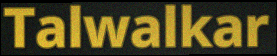
Talwalkar